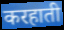
करहाती